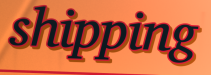
shipping